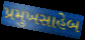
પ્રમુખસાહેબ